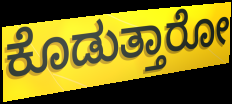
ಕೊಡುತ್ತಾರೋ